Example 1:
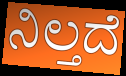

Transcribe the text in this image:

ನಿಲ್ತದೆ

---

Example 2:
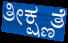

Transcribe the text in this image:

ತೀಕ್ಷ್ಣತೆ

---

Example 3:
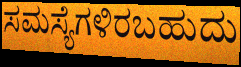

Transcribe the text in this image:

ಸಮಸ್ಯೆಗಳಿರಬಹುದು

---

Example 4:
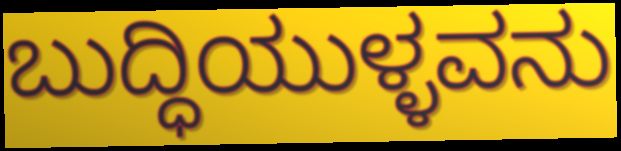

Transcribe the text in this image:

ಬುದ್ಧಿಯುಳ್ಳವನು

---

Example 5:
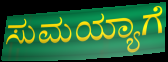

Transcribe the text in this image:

ಸುಮಯ್ಯಾಗೆ